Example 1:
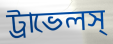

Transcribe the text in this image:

ট্রাভেলস্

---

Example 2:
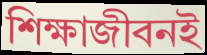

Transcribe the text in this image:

শিক্ষাজীবনই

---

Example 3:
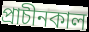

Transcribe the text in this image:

প্রাচীনকাল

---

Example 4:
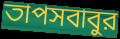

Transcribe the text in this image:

তাপসবাবুর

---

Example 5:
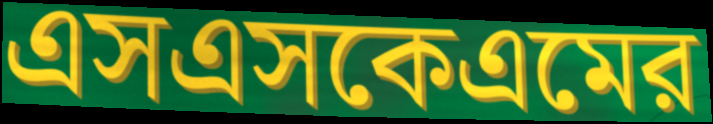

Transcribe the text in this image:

এসএসকেএমের